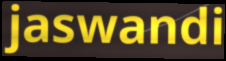
jaswandi